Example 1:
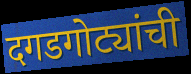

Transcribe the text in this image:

दगडगोट्यांची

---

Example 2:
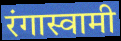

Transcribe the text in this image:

रंगास्वामी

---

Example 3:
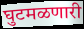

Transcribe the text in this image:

घुटमळणारी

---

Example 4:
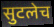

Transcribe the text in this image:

सुटलेच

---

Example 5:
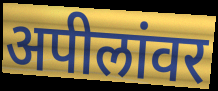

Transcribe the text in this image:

अपीलांवर